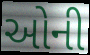
ઓની